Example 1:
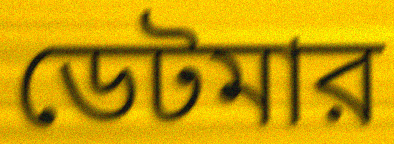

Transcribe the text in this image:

ডেটমার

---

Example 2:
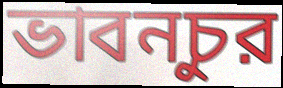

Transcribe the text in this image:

ভাবনচুর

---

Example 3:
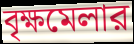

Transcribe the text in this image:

বৃক্ষমেলার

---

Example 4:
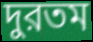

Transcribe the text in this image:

দুরতম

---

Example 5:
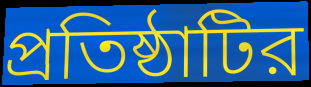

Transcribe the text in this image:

প্রতিষ্ঠাটির